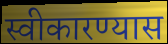
स्वीकारण्यास